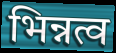
भिन्नत्व